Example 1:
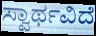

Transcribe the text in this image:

ಸ್ವಾರ್ಥವಿದೆ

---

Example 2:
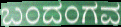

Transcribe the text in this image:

ಬಂದಂಗವ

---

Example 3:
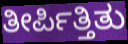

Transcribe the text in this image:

ತೀರ್ಪಿತ್ತಿತು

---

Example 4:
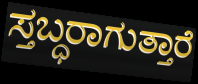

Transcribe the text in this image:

ಸ್ತಬ್ಧರಾಗುತ್ತಾರೆ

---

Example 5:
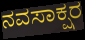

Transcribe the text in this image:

ನವಸಾಕ್ಷರ